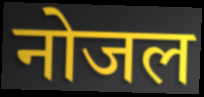
नोजल